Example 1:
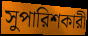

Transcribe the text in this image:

সুপারিশকারী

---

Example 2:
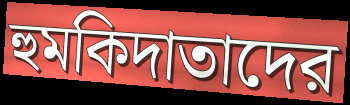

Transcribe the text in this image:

হুমকিদাতাদের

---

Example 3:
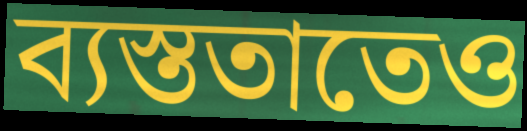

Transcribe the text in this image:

ব্যস্ততাতেও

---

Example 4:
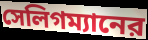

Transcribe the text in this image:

সেলিগম্যানের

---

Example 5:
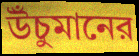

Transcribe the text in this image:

উঁচুমানের